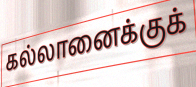
கல்லானைக்குக்